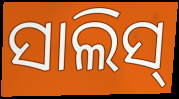
ସାଲିସ୍